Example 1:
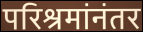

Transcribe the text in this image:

परिश्रमांनंतर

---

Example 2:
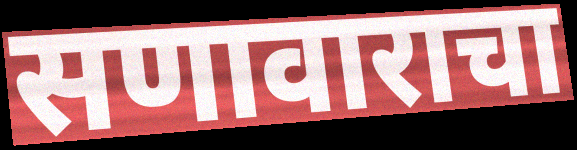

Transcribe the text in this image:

सणावाराचा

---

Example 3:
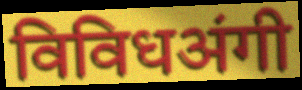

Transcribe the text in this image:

विविधअंगी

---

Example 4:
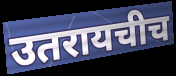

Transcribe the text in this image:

उतरायचीच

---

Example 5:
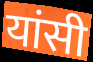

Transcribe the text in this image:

यांसी